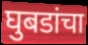
घुबडांचा